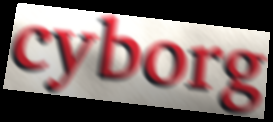
cyborg